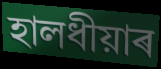
হালধীয়াৰ